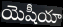
యెషీయా